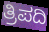
ತ್ರಿಪದಿ